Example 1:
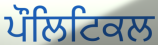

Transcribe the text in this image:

ਪੌਲਿਟਿਕਲ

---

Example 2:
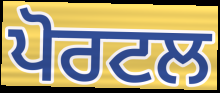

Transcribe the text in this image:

ਪੋਰਟਲ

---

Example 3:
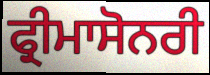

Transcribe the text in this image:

ਫ੍ਰੀਮਾਸੋਨਰੀ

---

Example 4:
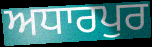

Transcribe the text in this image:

ਅਧਾਰਪੁਰ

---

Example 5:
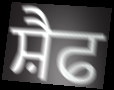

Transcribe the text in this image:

ਸ਼ੈਫ